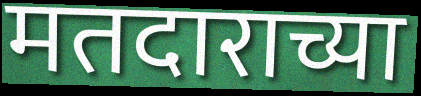
मतदाराच्या